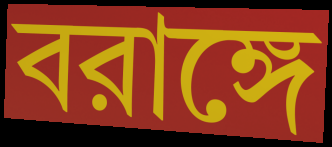
বরাঙ্গে